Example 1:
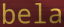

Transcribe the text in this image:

bela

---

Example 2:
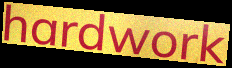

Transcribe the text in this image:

hardwork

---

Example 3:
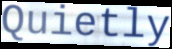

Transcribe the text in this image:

Quietly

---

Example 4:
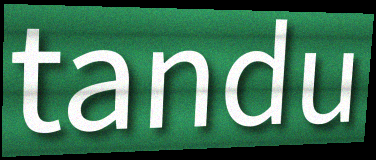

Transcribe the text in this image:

tandu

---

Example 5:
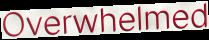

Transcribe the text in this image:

Overwhelmed